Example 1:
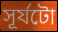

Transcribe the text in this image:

সূৰ্যটো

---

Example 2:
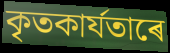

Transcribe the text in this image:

কৃতকাৰ্যতাৰে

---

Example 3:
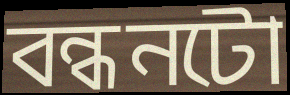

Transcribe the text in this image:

বন্ধনটো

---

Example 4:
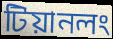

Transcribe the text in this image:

টিয়ানলং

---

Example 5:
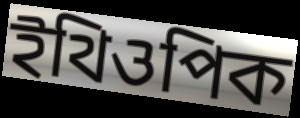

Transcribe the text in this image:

ইথিওপিক